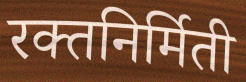
रक्तनिर्मिती